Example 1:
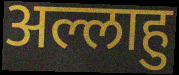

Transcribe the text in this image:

अल्लाहु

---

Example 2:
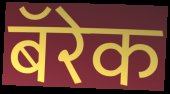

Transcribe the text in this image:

बॅरेक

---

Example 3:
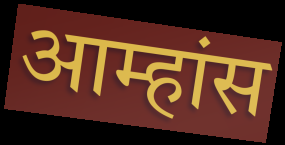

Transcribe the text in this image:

आम्हांस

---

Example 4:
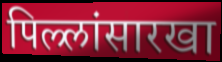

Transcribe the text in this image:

पिल्लांसारखा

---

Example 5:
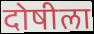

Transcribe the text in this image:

दोषीला